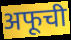
अफूची